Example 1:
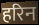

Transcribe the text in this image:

हरिन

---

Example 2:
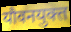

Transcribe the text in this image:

यौवनयुक्त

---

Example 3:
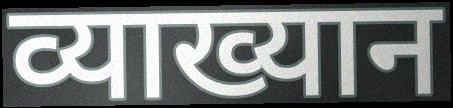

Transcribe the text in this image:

व्याख्यान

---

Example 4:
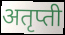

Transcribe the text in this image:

अतृप्ती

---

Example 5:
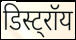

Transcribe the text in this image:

डिस्ट्रॉय